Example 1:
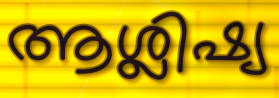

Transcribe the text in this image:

ആശ്ലിഷ്യ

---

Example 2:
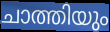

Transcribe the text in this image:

ചാത്തിയും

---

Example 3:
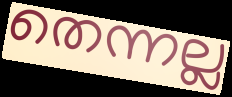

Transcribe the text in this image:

തെന്നല്ല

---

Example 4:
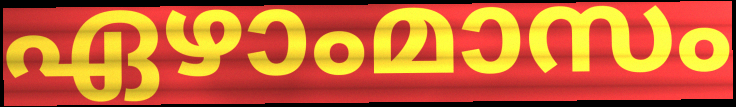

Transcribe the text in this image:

ഏഴാംമാസം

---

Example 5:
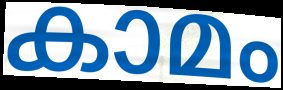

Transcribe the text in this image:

കാമം